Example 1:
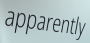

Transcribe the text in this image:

apparently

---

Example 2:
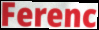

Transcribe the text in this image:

Ferenc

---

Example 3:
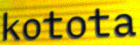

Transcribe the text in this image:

kotota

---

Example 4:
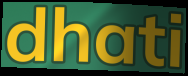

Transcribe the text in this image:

dhati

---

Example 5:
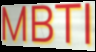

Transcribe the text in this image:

MBTI